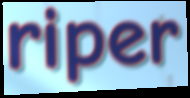
riper